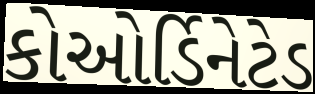
કોઓર્ડિનેટેડ